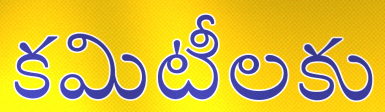
కమిటీలకు